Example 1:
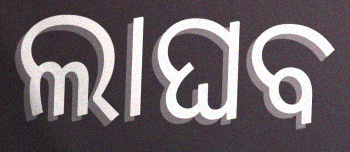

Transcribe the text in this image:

ଲାଘବ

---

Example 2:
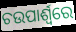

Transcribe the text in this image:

ଚଉପାର୍ଶ୍ୱରେ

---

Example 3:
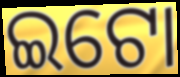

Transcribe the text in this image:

ଇଟୋ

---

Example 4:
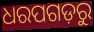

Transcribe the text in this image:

ଧରପଗଡ଼ରୁ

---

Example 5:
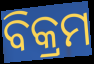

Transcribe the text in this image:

ବିକ୍ରମ